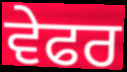
ਵੇਫਰ